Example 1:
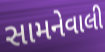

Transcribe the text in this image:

સામનેવાલી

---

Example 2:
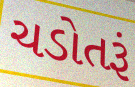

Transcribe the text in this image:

ચડોતરૂં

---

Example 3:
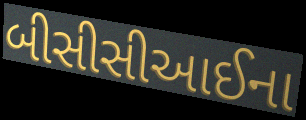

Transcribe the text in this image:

બીસીસીઆઈના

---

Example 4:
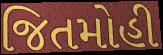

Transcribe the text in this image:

જિતમોહી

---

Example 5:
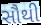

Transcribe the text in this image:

સૌથી